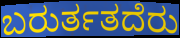
ಬರುರ್ತತದೆರು